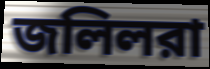
জলিলরা